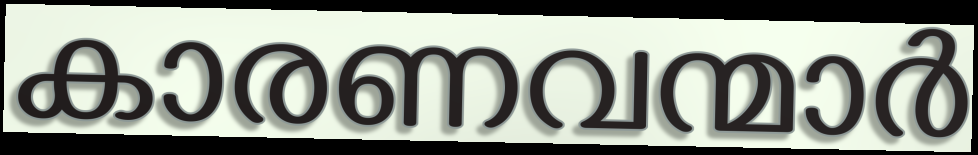
കാരണവന്മാർ